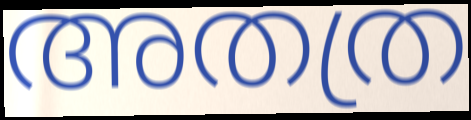
അതത്ര